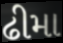
ઢીમા